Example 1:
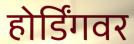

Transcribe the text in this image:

होर्डिंगवर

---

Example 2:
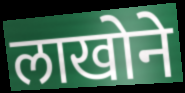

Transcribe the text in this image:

लाखोने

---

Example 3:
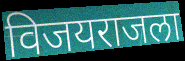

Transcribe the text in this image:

विजयराजला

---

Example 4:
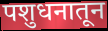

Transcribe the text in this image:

पशुधनातून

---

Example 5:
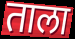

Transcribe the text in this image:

ताला